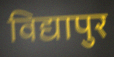
विद्यापुर